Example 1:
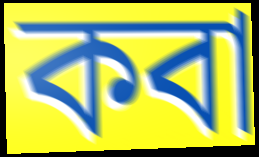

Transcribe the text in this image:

কবা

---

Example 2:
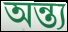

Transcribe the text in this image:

অন্ত্য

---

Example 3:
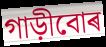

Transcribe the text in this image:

গাড়ীবোৰ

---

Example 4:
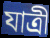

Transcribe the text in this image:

যাত্ৰী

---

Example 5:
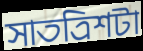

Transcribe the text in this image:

সাতত্ৰিশটা